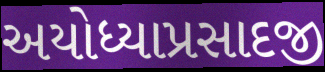
અયોધ્યાપ્રસાદજી